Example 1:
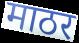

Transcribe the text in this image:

माठर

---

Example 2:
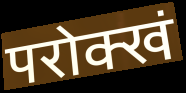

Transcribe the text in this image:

परोक्खं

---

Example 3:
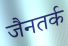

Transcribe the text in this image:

जैनतर्क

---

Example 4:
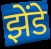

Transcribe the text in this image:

झेंडे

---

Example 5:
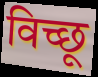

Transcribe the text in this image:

विच्छू